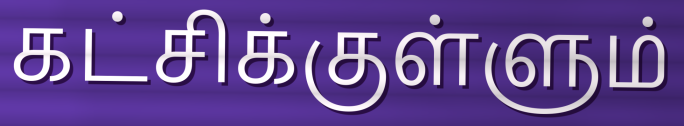
கட்சிக்குள்ளும்